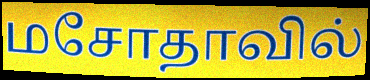
மசோதாவில்